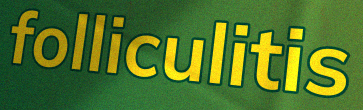
folliculitis